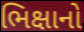
ભિક્ષાનો